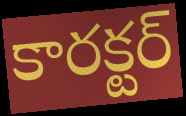
కారక్టర్